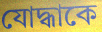
যোদ্ধাকে